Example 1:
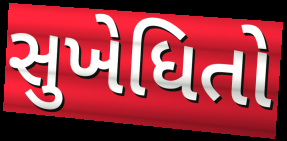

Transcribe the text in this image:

સુખેધિતો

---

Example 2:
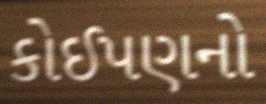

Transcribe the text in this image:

કોઈપણનો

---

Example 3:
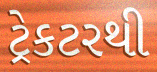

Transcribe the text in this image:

ટ્રેકટરથી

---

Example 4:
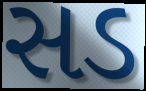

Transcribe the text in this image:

સડ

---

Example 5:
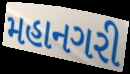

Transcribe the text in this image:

મહાનગરી